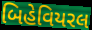
બિહેવિયરલ